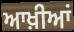
ਆਖ਼ੀਆਂ